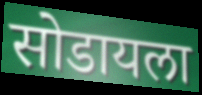
सोडायला